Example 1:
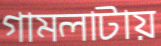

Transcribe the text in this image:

গামলাটায়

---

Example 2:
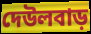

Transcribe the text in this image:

দেউলবাড়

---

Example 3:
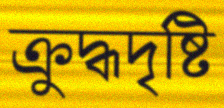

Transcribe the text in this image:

ক্রুদ্ধদৃষ্টি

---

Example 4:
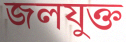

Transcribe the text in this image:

জলযুক্ত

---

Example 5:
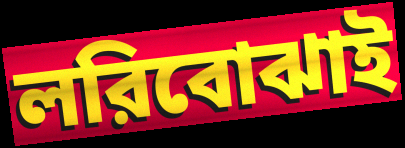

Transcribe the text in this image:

লরিবোঝাই